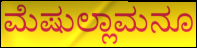
ಮೆಷುಲ್ಲಾಮನೂ